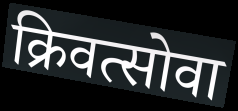
क्रिवत्सोवा